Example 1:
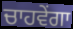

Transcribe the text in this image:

ਚਾਹਵੇਂਗਾ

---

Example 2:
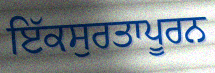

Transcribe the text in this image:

ਇੱਕਸੁਰਤਾਪੂਰਨ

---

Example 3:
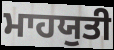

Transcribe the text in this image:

ਮਾਹਯੁਤੀ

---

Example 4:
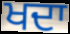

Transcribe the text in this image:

ਖਦਾ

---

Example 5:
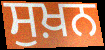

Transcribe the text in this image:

ਸੁਖ਼ਨ